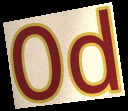
Od